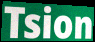
Tsion